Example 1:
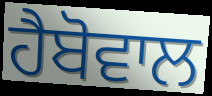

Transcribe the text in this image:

ਹੈਬੋਵਾਲ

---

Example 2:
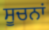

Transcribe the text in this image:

ਸੂਚਨਾਂ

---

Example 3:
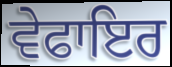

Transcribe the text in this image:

ਵੇਫਾਇਰ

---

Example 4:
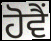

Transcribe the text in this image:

ਹੋਵੈਂ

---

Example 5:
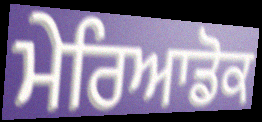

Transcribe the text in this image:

ਮੇਰਿਆਡੋਕ